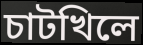
চাটখিলে